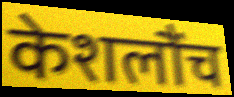
केशलौंच